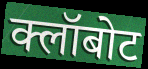
क्लॉबोट